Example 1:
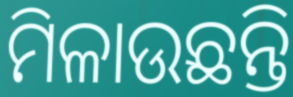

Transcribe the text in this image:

ମିଳାଉଛନ୍ତି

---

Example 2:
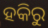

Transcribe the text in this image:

ହକିରୁ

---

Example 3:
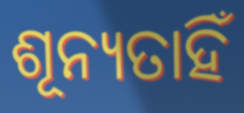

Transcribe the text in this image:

ଶୂନ୍ୟତାହିଁ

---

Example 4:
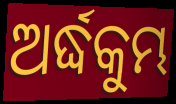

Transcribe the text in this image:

ଅର୍ଦ୍ଧକୁମ୍ଭ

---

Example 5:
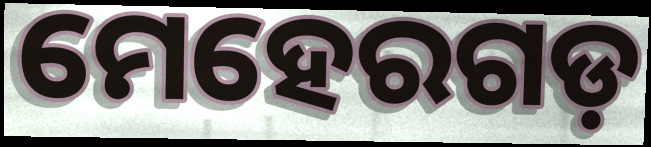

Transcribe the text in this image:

ମେହେରଗଡ଼